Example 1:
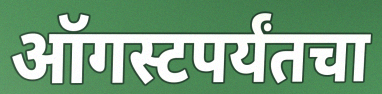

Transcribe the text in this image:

ऑगस्टपर्यंतचा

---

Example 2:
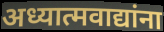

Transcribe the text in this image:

अध्यात्मवाद्यांना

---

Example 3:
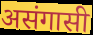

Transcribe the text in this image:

असंगासी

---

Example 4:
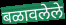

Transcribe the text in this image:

बळावलेले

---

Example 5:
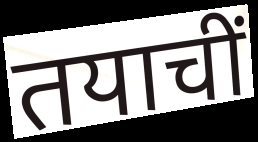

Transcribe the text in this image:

तयाचीं